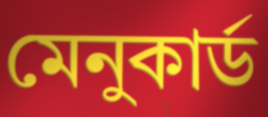
মেনুকার্ড